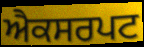
ਐਕਸਰਪਟ